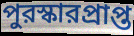
পুরস্কারপ্রাপ্ত